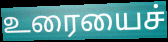
உரையைச்